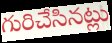
గురిచేసినట్లు